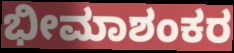
ಭೀಮಾಶಂಕರ